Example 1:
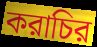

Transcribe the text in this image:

করাচির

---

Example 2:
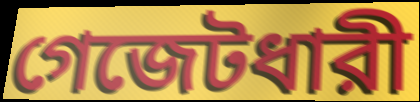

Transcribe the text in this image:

গেজেটধারী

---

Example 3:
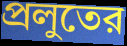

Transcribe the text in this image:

প্রলুতের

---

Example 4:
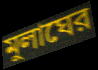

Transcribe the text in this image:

মুলাঘের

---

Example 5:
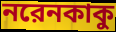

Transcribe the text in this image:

নরেনকাকু